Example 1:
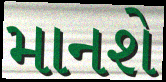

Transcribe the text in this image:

માનશે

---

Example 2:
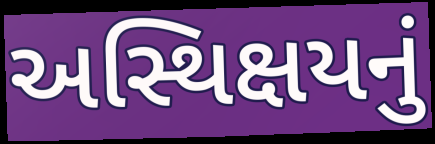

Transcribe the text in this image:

અસ્થિક્ષયનું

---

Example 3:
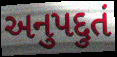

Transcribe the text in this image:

અનુપદ્દુતં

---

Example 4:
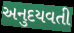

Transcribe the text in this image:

અનુદયવતી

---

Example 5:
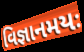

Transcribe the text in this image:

વિજ્ઞાનમયઃ